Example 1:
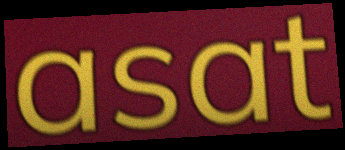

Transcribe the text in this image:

asat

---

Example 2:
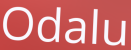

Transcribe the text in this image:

Odalu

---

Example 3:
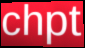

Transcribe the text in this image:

chpt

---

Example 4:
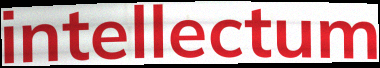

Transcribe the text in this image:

intellectum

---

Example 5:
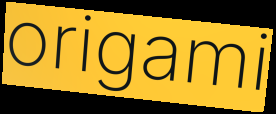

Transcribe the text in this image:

origami